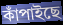
কাঁপাইছে